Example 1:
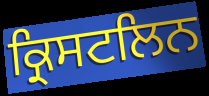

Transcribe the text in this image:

ਕ੍ਰਿਸਟਲਿਨ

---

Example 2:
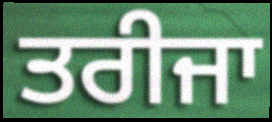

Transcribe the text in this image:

ਤਰੀਜਾ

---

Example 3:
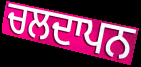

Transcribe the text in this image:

ਚਲਦਾਪਨ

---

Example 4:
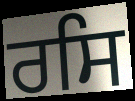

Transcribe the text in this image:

ਰਸਿ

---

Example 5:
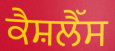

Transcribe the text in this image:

ਕੈਸ਼ਲੈੱਸ